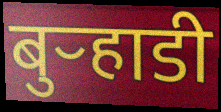
बुऱ्हाडी